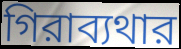
গিরাব্যথার